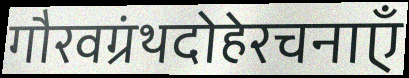
गौरवग्रंथदोहेरचनाएँ